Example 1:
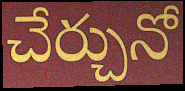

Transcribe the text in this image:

చేర్చునో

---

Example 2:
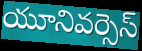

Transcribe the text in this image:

యూనివర్సెస్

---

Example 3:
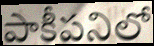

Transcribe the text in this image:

పాకీపనిలో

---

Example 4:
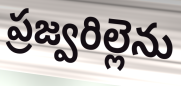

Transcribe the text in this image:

ప్రజ్వరిల్లెను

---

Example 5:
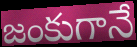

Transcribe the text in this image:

జంకుగానే